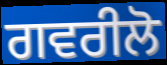
ਗਵਰੀਲੋ